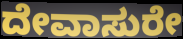
ದೇವಾಸುರೇ